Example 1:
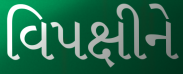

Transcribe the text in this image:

વિપક્ષીને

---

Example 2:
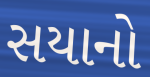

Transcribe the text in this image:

સયાનો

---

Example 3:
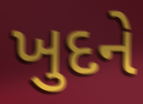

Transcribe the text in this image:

ખુદને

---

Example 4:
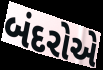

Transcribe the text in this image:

બંદરોએ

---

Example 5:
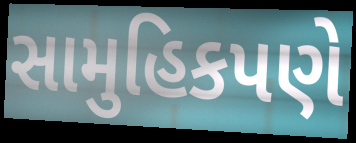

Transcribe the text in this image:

સામુહિકપણે